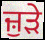
ਜ਼ੁੜੇ